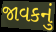
જાવકનું